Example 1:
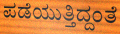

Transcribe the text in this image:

ಪಡೆಯುತ್ತಿದ್ದಂತೆ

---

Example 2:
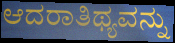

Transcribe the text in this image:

ಆದರಾತಿಥ್ಯವನ್ನು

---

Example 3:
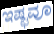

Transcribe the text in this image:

ಇಷ್ಟವೂ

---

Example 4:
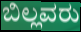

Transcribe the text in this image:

ಬಿಲ್ಲವರು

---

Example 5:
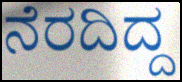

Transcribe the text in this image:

ನೆರದಿದ್ದ